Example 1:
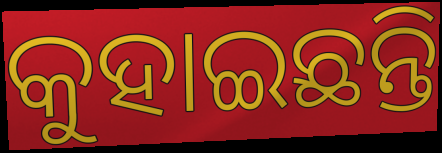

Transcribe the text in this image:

କୁହାଇଛନ୍ତି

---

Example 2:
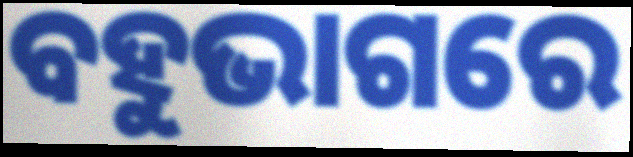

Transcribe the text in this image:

ବହୁଭାଗରେ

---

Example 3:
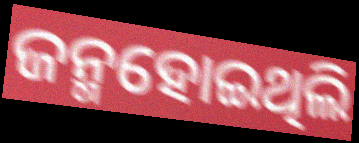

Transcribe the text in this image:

ଜନ୍ମହୋଇଥିଲି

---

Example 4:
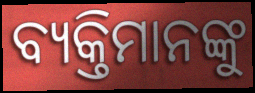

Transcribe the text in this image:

ବ୍ଯକ୍ତିମାନଙ୍କୁ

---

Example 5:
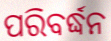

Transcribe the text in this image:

ପରିବର୍ଦ୍ଧନ